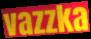
vazzka